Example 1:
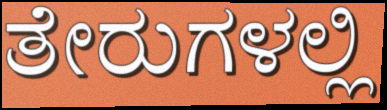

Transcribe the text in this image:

ತೇರುಗಳಲ್ಲಿ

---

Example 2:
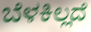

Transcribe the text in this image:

ಬೆಳಕಿಲ್ಲದೆ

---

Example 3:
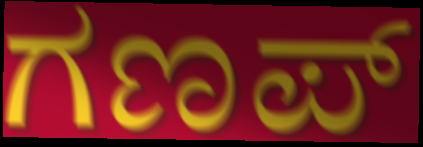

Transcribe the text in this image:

ಗಣಪ್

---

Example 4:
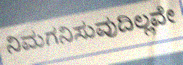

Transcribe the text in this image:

ನಿಮಗನಿಸುವುದಿಲ್ಲವೇ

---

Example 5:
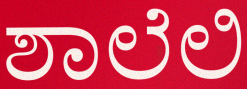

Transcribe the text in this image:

ಶಾಲೆಲಿ